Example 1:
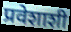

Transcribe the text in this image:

प्रवेशाशी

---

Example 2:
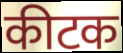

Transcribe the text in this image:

कीटक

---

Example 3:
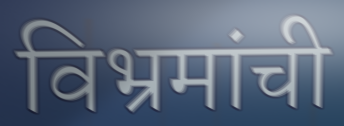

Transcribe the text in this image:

विभ्रमांची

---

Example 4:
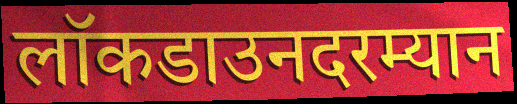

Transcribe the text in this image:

लॉकडाउनदरम्यान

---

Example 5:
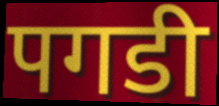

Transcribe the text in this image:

पगडी